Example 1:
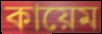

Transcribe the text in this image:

কায়েম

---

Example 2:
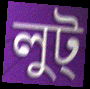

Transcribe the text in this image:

লুট্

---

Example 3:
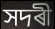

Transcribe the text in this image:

সদৰী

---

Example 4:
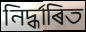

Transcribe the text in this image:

নিৰ্দ্ধাৰিত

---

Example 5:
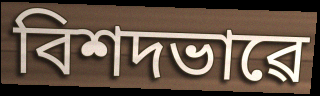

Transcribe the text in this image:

বিশদভাৱে